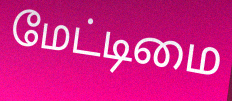
மேட்டிமை